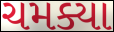
ચમક્યા